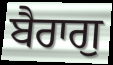
ਬੈਰਾਗੁ